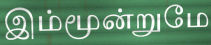
இம்மூன்றுமே